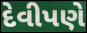
દેવીપણે